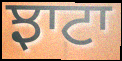
ਝਾਟਾ